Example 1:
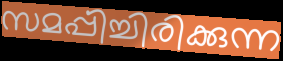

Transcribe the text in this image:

സമൎപ്പിച്ചിരിക്കുന്ന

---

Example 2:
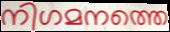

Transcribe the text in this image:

നിഗമനത്തെ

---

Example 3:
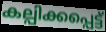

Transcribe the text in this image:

കല്പിക്കപ്പെട്ട്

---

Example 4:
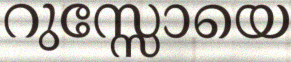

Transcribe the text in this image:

റുസ്സോയെ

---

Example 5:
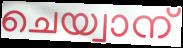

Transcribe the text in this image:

ചെയ്വാന്